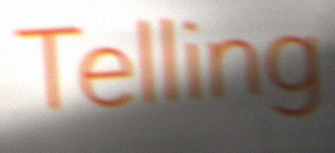
Telling